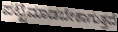
ಪಟ್ಟಿಮಾಡಬೇಕಾಗುತ್ತದೆ